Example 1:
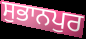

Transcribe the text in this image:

ਸੁਭਾਨਪੁਰ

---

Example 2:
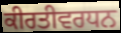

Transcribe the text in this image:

ਕੀਰਤੀਵਰਧਨ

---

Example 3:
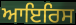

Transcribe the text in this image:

ਆਇਰਿਸ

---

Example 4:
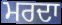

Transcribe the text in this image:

ਮਰਦਾ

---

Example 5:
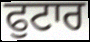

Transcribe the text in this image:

ਫੁਟਾਰ